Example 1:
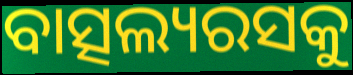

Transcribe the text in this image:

ବାତ୍ସଲ୍ୟରସକୁ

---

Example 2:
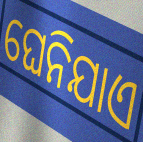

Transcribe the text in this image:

ଘେନିଯାଏ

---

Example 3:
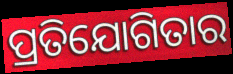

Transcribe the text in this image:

ପ୍ରତିଯୋଗିତାର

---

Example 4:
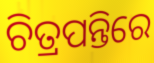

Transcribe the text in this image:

ଚିତ୍ରପନ୍ତିରେ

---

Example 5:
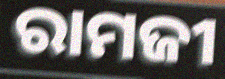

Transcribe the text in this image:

ରାମଜୀ